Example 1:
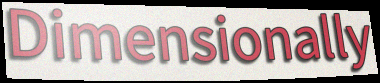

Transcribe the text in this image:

Dimensionally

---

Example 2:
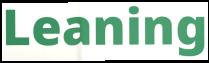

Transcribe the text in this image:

Leaning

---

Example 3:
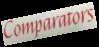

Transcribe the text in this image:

Comparators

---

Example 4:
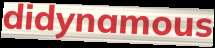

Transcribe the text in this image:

didynamous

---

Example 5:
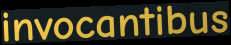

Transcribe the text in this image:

invocantibus